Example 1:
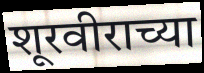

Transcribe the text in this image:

शूरवीराच्या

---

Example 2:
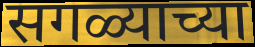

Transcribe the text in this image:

सगळ्याच्या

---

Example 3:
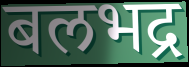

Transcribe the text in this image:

बलभद्र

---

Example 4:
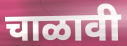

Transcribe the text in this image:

चाळावी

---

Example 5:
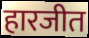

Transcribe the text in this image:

हारजीत